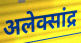
अलेक्सांद्र